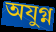
অযুগ্ন